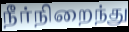
நீர்நிறைந்து